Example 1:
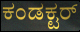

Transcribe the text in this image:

ಕಂಡಕ್ಟರ್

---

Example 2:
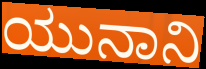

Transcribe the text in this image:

ಯುನಾನಿ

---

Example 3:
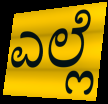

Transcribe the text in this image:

ಎಲ್ಲೆ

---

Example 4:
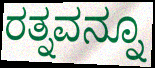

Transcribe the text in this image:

ರತ್ನವನ್ನೂ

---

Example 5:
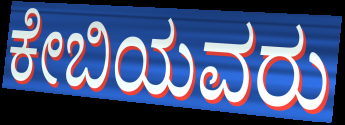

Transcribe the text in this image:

ಕೇಬಿಯವರು